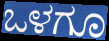
ಒಳಗೂ